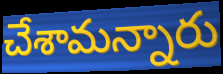
చేశామన్నారు